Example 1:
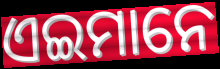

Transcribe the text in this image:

ଏଇମାନେ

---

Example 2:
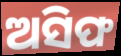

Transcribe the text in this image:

ଅସିଫ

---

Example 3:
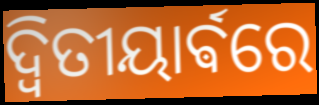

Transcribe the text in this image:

ଦ୍ଵିତୀୟାର୍ଵରେ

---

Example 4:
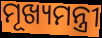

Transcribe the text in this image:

ମୂଖ୍ୟମନ୍ତ୍ରୀ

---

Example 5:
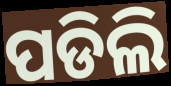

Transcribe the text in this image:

ପଡିଲି